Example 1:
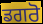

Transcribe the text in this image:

ਡਗਰੋ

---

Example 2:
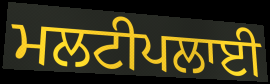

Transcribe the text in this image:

ਮਲਟੀਪਲਾਈ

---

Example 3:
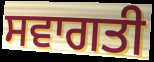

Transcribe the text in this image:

ਸਵਾਗਤੀ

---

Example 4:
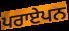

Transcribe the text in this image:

ਪਰਾਏਪਨ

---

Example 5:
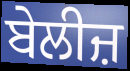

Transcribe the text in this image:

ਬੇਲੀਜ਼